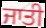
ਜਾਤੀ